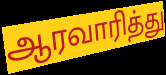
ஆரவாரித்து